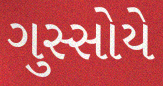
ગુસ્સોયે